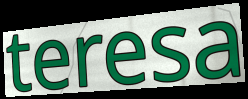
teresa